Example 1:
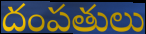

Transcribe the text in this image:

దంపతులు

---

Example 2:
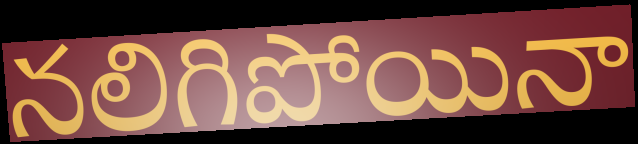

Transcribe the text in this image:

నలిగిపోయినా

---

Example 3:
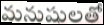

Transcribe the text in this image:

మనుషులతో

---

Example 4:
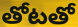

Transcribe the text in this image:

తోటతో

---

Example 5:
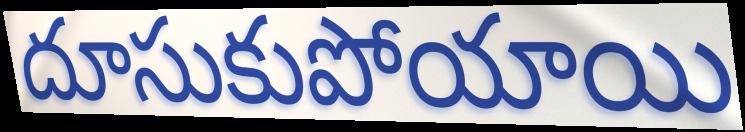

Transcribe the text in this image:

దూసుకుపోయాయి